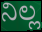
ನಿಲ್ಲ